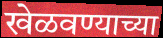
खेळवण्याच्या